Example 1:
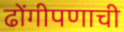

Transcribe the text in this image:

ढोंगीपणाची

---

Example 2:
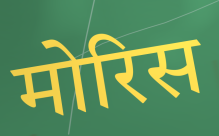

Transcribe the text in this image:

मोरिस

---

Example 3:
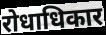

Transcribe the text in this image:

रोधाधिकार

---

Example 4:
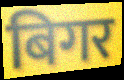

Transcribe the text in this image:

बिगर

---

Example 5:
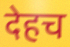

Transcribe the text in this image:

देहच